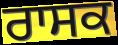
ਰਾਸਕ